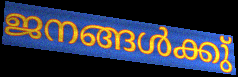
ജനങ്ങൾക്കു്